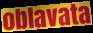
oblavata